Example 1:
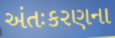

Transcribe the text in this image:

અંતઃકરણના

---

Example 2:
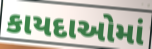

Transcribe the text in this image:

કાયદાઓમાં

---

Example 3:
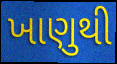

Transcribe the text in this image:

ખાણુથી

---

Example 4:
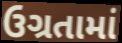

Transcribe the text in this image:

ઉગ્રતામાં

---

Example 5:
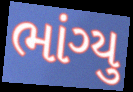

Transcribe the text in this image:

ભાંગ્યુ